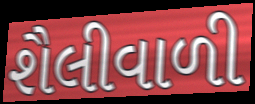
શૈલીવાળી